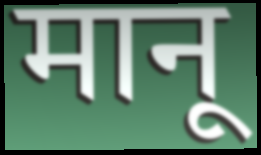
मानू